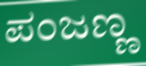
ಪಂಜಣ್ಣ